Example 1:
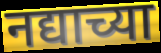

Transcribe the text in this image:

नद्याच्या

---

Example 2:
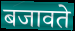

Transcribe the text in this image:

बजावते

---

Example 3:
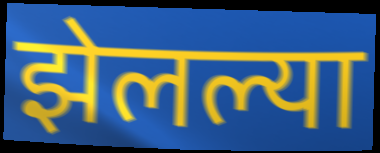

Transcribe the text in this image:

झेलल्या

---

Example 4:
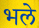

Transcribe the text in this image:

भले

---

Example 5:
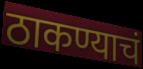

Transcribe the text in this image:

ठाकण्याचं